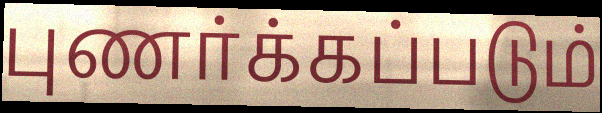
புணர்க்கப்படும்